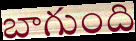
బాగుంది